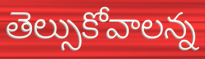
తెల్సుకోవాలన్న